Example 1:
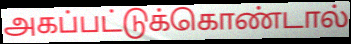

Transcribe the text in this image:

அகப்பட்டுக்கொண்டால்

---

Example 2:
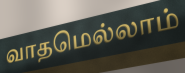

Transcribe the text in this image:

வாதமெல்லாம்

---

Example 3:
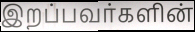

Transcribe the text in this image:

இறப்பவர்களின்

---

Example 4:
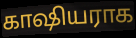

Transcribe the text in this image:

காஷியராக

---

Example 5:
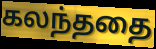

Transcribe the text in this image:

கலந்ததை